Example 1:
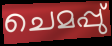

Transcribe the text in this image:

ചെമപ്പു്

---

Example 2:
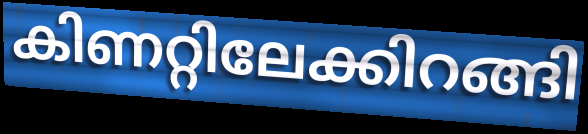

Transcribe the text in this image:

കിണറ്റിലേക്കിറങ്ങി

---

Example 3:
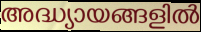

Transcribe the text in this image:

അദ്ധ്യായങ്ങളിൽ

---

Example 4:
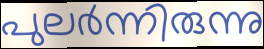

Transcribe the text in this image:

പുലർന്നിരുന്നു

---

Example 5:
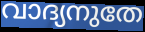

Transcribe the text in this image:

വാദ്യനുതേ